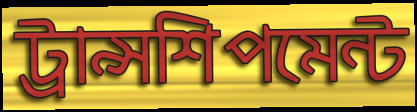
ট্রান্সশিপমেন্ট